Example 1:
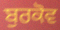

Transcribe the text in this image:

ਬੁਰਕੋਵ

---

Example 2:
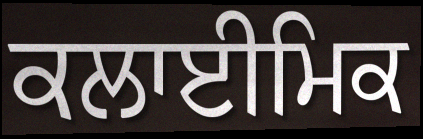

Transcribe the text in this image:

ਕਲਾਈਮਿਕ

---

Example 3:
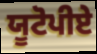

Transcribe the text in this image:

ਯੂਟੋਪੀਏ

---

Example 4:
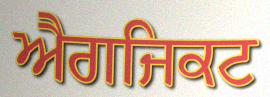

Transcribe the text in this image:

ਐਗਜਿਕਟ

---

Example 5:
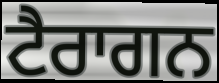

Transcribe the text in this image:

ਟੈਰਾਗਨ